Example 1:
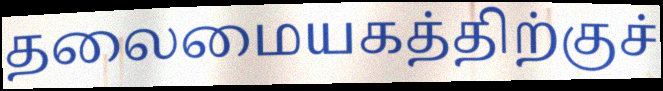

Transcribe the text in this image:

தலைமையகத்திற்குச்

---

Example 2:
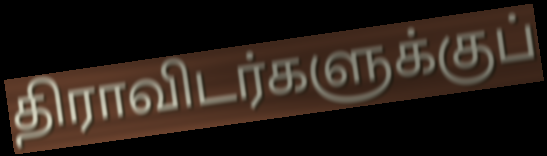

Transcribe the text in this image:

திராவிடர்களுக்குப்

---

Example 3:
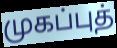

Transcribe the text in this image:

முகப்புத்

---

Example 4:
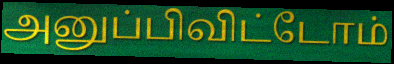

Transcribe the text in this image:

அனுப்பிவிட்டோம்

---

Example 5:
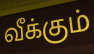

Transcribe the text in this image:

வீக்கும்